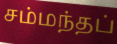
சம்மந்தப்